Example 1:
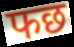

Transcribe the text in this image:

फछ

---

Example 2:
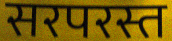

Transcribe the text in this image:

सरपरस्त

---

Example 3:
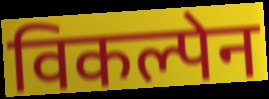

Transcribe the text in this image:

विकल्पेन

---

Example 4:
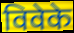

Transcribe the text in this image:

विवेके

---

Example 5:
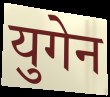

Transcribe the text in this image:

युगेन